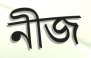
নীজ